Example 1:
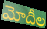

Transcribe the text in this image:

మోదీల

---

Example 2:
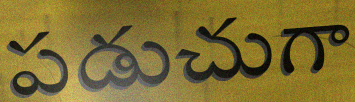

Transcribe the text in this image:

పడుచుగా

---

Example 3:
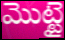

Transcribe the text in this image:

మొట్టై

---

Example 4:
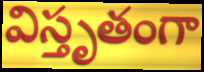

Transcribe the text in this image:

విస్తృతంగా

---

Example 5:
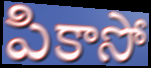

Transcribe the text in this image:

పికాసో